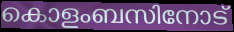
കൊളംബസിനോട്